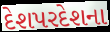
દેશપરદેશના